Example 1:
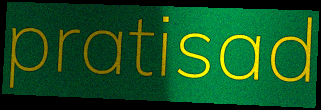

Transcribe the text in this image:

pratisad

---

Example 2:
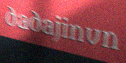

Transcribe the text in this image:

dadajinun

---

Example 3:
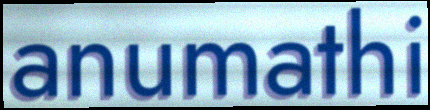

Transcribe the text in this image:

anumathi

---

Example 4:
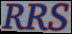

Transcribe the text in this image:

RRS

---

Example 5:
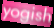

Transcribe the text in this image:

yogish